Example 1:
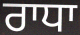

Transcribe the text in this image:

ਰਾਧਾ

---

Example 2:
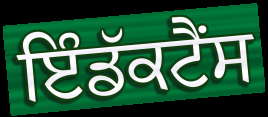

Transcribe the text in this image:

ਇੰਡੱਕਟੈਂਸ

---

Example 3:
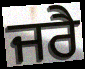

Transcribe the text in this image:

ਜਰੈ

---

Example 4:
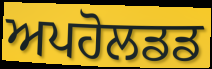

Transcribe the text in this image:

ਅਪਹੋਲਡਡ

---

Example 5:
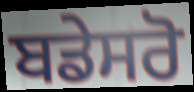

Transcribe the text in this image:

ਬਡੇਸਰੋ